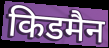
किडमैन